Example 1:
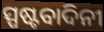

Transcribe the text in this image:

ସ୍ପଷ୍ଟବାଦିନୀ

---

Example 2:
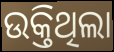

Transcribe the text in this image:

ଉକ୍ତିଥିଲା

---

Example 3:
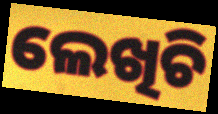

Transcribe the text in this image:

ଲେଖିଚି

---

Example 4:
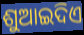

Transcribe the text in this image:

ଶୁଆଇଦିଏ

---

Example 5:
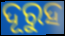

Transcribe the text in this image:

ଦୂରୁହ